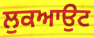
ਲੁਕਆਉਟ